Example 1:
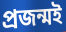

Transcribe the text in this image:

প্রজন্মই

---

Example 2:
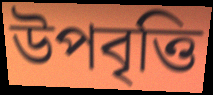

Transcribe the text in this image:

উপবৃত্তি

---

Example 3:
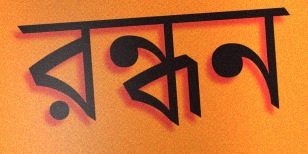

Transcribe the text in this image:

রন্ধন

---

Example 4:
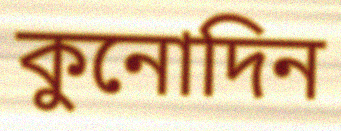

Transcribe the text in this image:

কুনোদিন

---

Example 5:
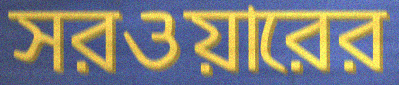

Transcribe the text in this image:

সরওয়ারের